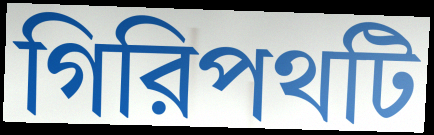
গিরিপথটি